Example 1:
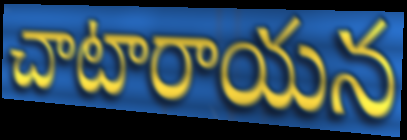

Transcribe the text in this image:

చాటారాయన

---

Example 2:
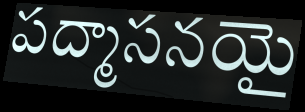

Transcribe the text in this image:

పద్మాసనయై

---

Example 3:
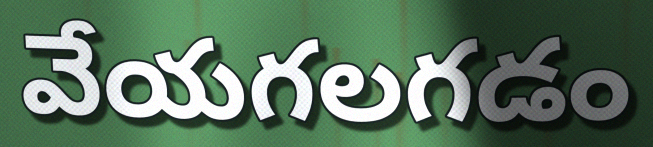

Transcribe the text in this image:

వేయగలగడం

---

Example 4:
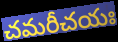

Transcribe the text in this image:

చమరీచయః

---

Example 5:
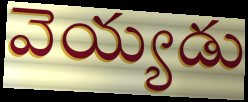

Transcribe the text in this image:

వెయ్యడు